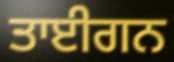
ਤਾਈਗਨ